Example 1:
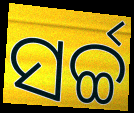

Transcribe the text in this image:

ସର୍ଚ୍ଚ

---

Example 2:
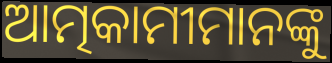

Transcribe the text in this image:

ଆତ୍ମକାମୀମାନଙ୍କୁ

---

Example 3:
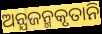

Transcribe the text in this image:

ଅନ୍ଯଜନ୍ମକୃତାନି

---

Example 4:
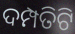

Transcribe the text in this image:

ଦମ୍ପତିଟି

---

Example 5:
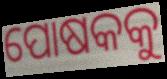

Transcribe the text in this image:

ପୋଷକକୁ